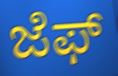
ಜೆಫ್